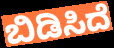
ಬಿಡಿಸಿದೆ